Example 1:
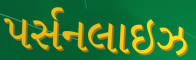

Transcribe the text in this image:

પર્સનલાઇઝ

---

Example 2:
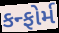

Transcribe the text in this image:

કન્ફોર્મ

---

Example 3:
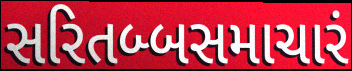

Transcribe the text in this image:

સરિતબ્બસમાચારં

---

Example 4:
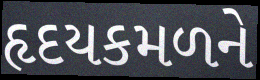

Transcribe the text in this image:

હૃદયકમળને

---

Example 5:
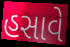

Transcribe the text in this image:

હસાવે